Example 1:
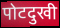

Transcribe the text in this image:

पोटदुखी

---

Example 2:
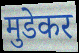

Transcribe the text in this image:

मुडेकर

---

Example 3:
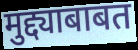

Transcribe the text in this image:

मुद्द्याबाबत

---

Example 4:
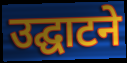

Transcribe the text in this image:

उद्घाटने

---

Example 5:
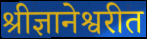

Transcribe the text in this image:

श्रीज्ञानेश्वरीत